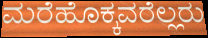
ಮರೆಹೊಕ್ಕವರೆಲ್ಲರು